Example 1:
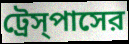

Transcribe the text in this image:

ট্রেস্‌পাসের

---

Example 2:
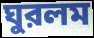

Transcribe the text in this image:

ঘুরলম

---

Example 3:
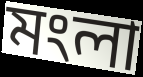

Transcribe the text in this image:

মংলা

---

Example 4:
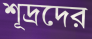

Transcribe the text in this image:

শূদ্রদের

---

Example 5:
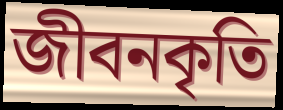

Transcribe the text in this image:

জীবনকৃতি